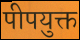
पीपयुक्त